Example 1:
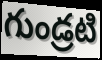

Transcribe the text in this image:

గుండ్రటి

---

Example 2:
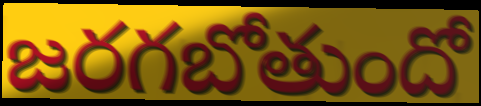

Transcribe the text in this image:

జరగబోతుందో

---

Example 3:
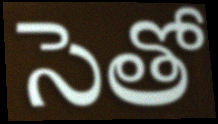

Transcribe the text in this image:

సెతో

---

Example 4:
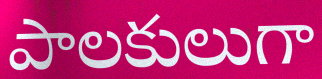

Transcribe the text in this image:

పాలకులుగా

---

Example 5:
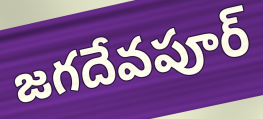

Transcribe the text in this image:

జగదేవపూర్